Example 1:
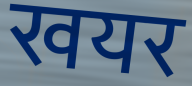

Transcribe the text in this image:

खयर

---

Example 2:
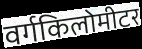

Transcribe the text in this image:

वर्गकिलोमीटर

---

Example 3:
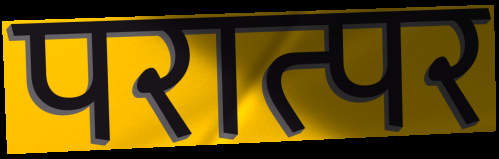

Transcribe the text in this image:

परात्‍पर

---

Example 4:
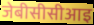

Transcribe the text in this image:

जेबीसीसीआइ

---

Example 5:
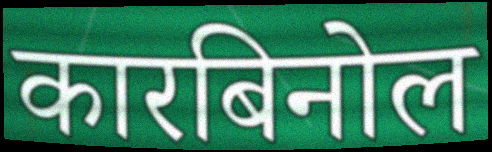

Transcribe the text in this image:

कारबिनोल